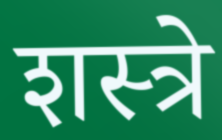
शस्त्रे